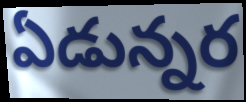
ఏడున్నర